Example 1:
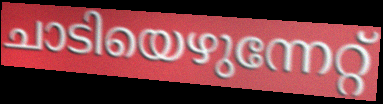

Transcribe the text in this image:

ചാടിയെഴുന്നേറ്റ്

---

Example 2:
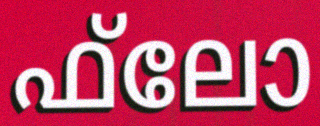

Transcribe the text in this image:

ഫ്‌ലോ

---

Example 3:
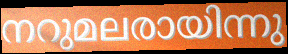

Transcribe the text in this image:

നറുമലരായിന്നു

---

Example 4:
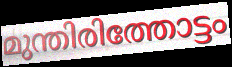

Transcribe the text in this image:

മുന്തിരിത്തോട്ടം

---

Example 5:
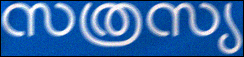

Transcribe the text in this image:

സത്രസ്യ